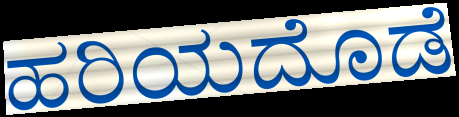
ಹರಿಯದೊಡೆ